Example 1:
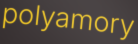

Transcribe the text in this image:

polyamory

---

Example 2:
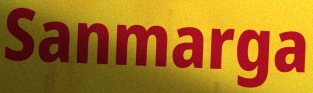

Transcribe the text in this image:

Sanmarga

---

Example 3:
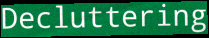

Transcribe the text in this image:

Decluttering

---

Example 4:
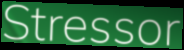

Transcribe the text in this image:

Stressor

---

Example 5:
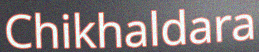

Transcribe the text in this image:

Chikhaldara